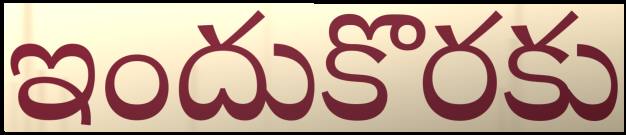
ఇందుకొరకు